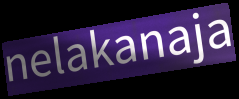
nelakanaja